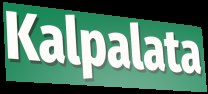
Kalpalata